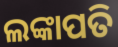
ଲଙ୍କାପତି